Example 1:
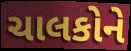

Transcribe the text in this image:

ચાલકોને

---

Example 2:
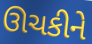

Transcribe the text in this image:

ઊચકીને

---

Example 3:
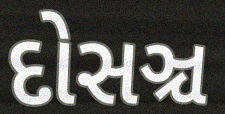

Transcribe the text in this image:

દોસઞ્ચ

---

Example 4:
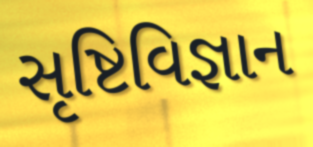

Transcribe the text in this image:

સૃષ્ટિવિજ્ઞાન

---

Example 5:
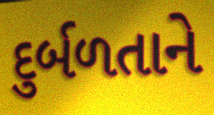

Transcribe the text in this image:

દુર્બળતાને